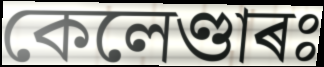
কেলেণ্ডাৰঃ